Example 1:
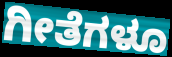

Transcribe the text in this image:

ಗೀತೆಗಳೂ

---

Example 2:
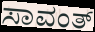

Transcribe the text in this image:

ಸಾವಂತ್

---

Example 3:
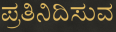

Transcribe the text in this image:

ಪ್ರತಿನಿದಿಸುವ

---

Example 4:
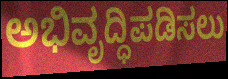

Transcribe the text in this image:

ಅಭಿವೃದ್ಧಿಪಡಿಸಲು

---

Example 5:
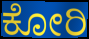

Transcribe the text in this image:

ಕೋರಿ